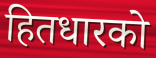
हितधारको